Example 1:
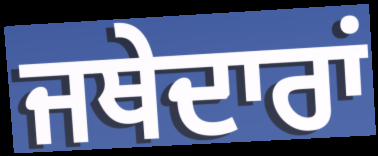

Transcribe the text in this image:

ਜਥੇਦਾਰਾਂ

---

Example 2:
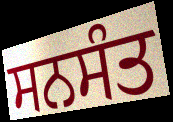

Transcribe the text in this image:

ਸਨਸੰਤ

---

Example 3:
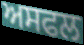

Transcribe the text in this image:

ਅਸਫਲ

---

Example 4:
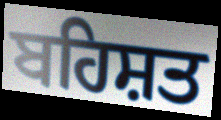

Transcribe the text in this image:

ਬਹਿਸ਼ਤ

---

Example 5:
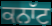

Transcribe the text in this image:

ਕਨਾੱਟ